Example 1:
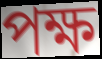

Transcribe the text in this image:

পক্ষ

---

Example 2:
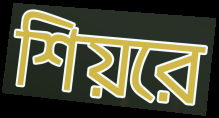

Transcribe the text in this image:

শিয়রে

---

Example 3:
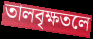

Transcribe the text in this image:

তালবৃক্ষতলে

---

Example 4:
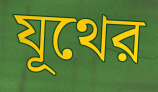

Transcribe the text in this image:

যূথের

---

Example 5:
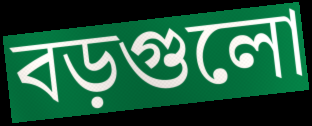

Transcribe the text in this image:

বড়গুলো